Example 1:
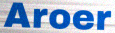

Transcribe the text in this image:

Aroer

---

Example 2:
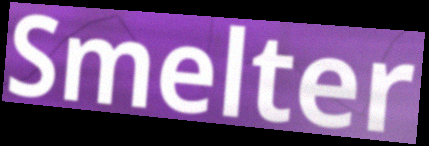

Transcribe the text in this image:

Smelter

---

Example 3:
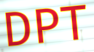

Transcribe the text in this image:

DPT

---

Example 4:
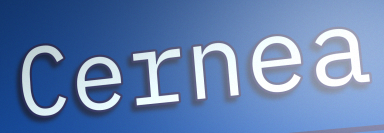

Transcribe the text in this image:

Cernea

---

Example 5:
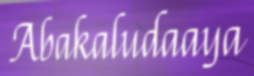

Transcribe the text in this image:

Abakaludaaya